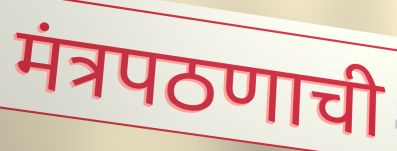
मंत्रपठणाची